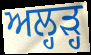
ਅਲ੍ਹੜ੍ਹ